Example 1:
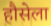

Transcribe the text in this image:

हौसेला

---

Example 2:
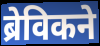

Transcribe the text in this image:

ब्रेविकने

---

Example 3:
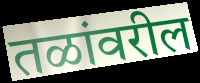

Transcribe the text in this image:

तळांवरील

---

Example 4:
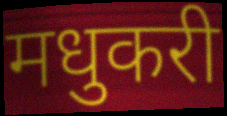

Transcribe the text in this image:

मधुकरी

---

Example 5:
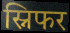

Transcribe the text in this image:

स्निफर